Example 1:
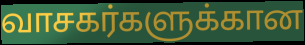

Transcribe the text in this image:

வாசகர்களுக்கான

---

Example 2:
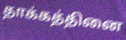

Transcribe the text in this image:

தாக்கத்தினை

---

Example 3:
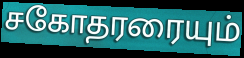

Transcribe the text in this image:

சகோதரரையும்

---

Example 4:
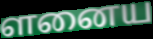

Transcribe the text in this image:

ளனைய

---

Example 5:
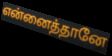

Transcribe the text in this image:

என்னைத்தானே